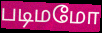
படிமமோ